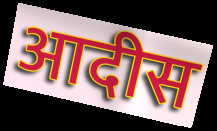
आदीस